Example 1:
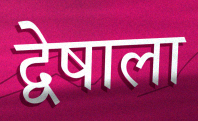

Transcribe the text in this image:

द्वेषाला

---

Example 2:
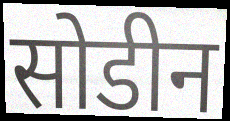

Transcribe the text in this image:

सोडीन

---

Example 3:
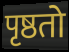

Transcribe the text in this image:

पृष्ठतो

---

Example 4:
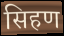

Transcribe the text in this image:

सिहण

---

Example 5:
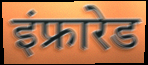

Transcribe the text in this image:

इंफ्रारेड